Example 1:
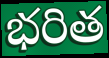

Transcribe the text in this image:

భరిత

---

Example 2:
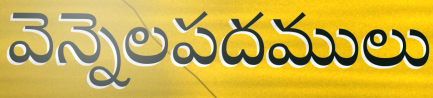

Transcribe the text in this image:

వెన్నెలపదములు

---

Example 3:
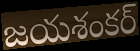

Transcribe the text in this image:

జయశంకర్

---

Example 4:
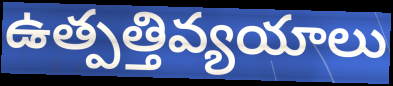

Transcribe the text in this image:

ఉత్పత్తివ్యయాలు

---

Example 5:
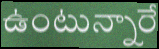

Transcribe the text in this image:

ఉంటున్నారే